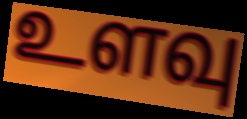
உளவு